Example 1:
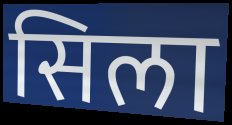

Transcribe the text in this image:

सिला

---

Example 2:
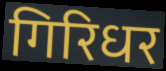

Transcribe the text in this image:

गिरिधर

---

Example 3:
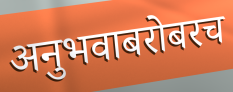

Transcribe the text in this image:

अनुभवाबरोबरच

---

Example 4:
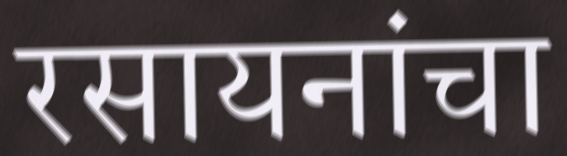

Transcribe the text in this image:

रसायनांचा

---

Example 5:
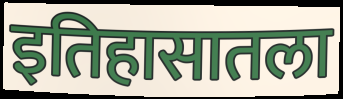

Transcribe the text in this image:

इतिहासातला